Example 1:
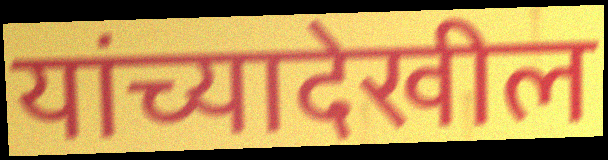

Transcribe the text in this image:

यांच्यादेखील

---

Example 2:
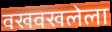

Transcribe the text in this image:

वखवखलेला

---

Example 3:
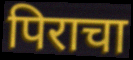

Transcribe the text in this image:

पिराचा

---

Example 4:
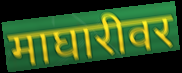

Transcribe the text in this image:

माघारीवर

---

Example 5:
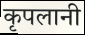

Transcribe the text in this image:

कृपलानी